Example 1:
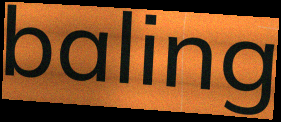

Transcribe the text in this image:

baling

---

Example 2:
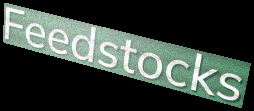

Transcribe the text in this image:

Feedstocks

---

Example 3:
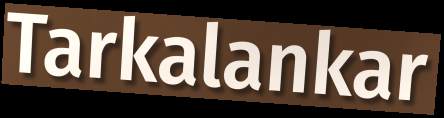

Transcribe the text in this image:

Tarkalankar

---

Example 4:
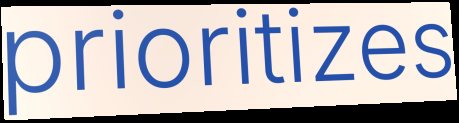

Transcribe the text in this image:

prioritizes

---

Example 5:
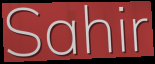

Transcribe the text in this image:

Sahir